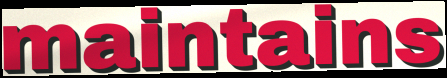
maintains